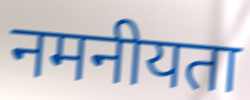
नमनीयता